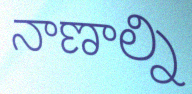
నాణాల్ని